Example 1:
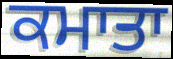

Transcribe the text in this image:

ਕਮਾਤਾ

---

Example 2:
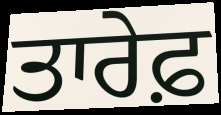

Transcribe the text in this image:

ਤਾਰੇਫ਼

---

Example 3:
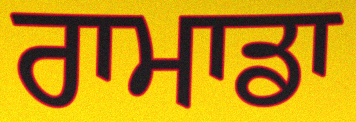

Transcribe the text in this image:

ਰਾਮਾਡਾ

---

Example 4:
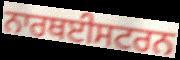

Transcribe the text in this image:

ਨਾਰਥਈਸਟਰਨ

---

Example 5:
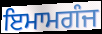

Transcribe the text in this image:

ਇਮਾਮਗੰਜ